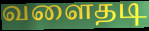
வளைதடி